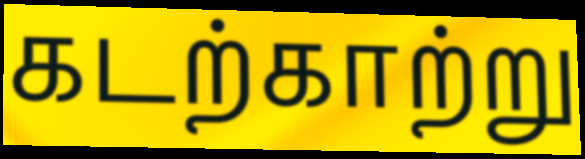
கடற்காற்று